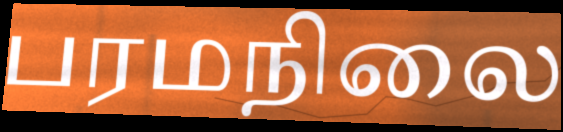
பரமநிலை